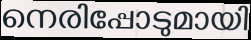
നെരിപ്പോടുമായി